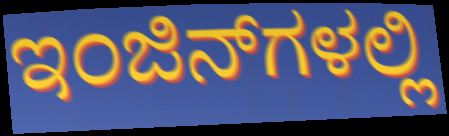
ಇಂಜಿನ್‌ಗಳಲ್ಲಿ